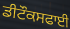
ਡੀਟੌਕਸਫਾਈ